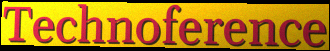
Technoference